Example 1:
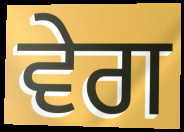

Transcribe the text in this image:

ਵੇਗ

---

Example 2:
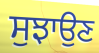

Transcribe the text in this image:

ਸੁਝਾਉਣ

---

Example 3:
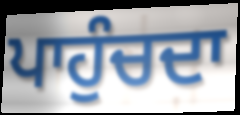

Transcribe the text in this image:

ਪਾਹੁੰਚਦਾ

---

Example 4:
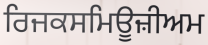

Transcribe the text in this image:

ਰਿਜਕਸਮਿਊਜ਼ੀਅਮ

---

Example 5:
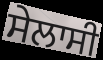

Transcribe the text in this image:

ਸੇਲਾਸੀ